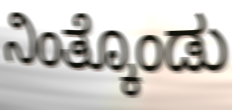
ನಿಂತ್ಕೊಂಡು